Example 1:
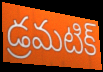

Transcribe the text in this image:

డ్రమటిక్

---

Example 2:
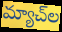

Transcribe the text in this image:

మ్యాచ్‌ల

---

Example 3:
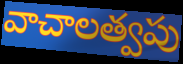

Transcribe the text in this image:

వాచాలత్వపు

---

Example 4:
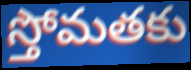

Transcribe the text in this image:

స్తోమతకు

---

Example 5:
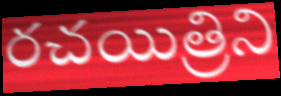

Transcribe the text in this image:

రచయిత్రిని